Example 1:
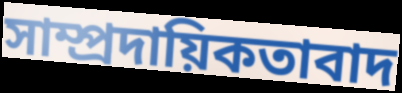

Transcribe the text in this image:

সাম্প্ৰদায়িকতাবাদ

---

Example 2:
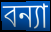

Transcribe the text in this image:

বন্যা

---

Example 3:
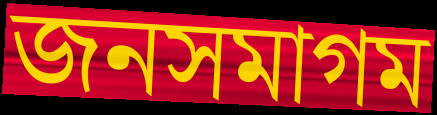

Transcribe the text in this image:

জনসমাগম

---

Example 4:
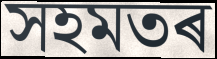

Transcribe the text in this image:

সহমতৰ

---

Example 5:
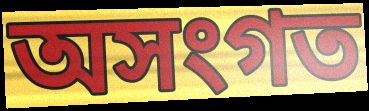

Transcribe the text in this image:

অসংগত